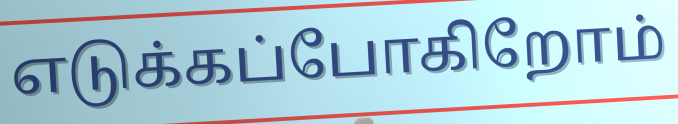
எடுக்கப்போகிறோம்